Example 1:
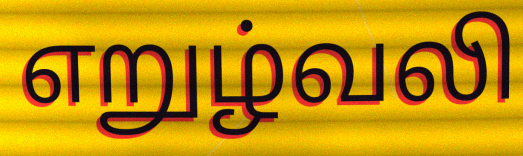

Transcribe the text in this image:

எறுழ்வலி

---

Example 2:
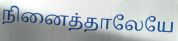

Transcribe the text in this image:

நினைத்தாலேயே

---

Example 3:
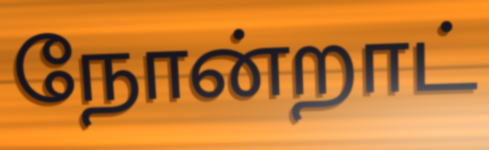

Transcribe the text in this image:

நோன்றாட்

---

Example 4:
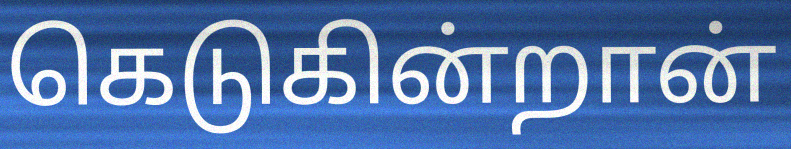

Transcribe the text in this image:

கெடுகின்றான்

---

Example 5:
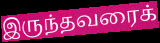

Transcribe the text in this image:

இருந்தவரைக்